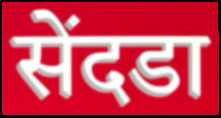
सेंदडा